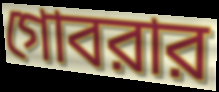
গোবরার